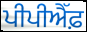
ਪੀਪੀਐੱਫ਼